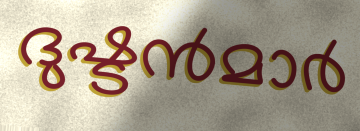
ദുഷ്ടൻമാർ